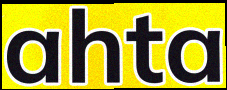
ahta